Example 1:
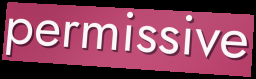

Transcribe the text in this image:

permissive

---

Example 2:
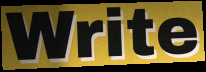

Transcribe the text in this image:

Write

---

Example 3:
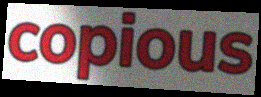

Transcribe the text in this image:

copious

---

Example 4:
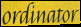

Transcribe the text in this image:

ordinator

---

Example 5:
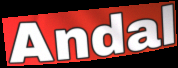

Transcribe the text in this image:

Andal